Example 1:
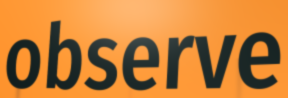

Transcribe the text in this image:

observe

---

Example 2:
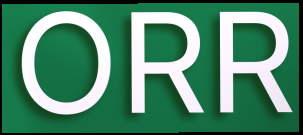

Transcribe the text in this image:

ORR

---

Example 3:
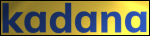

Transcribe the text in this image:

kadana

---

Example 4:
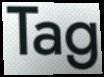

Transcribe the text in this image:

Tag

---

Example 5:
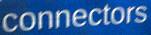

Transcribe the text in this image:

connectors